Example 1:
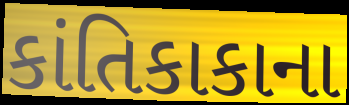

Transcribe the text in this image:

કાંતિકાકાના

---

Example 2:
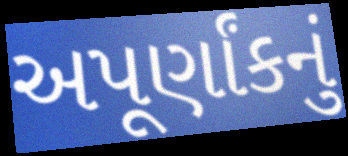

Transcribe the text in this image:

અપૂર્ણાંકનું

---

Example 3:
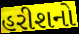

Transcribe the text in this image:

હરીશનો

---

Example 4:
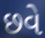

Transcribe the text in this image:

છવે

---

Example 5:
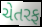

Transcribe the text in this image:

ચેતરફ